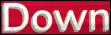
Down